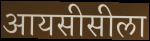
आयसीसीला